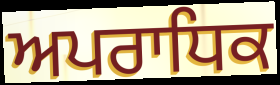
ਅਪਰਾਧਿਕ